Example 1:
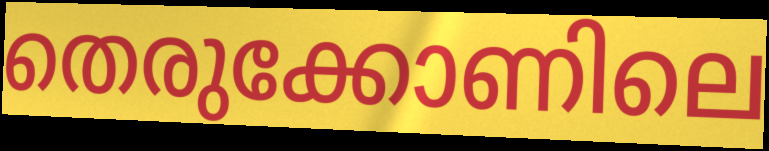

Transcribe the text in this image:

തെരുക്കോണിലെ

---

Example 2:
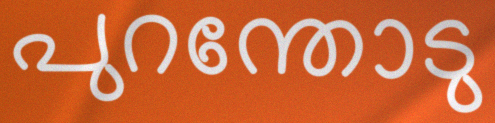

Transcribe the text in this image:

പുറന്തോടു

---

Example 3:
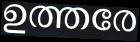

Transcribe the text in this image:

ഉത്തരേ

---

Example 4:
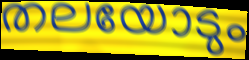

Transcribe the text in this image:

തലയോടും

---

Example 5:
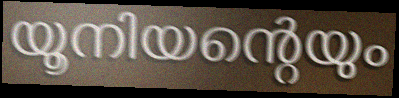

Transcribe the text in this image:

യൂനിയന്റെയും